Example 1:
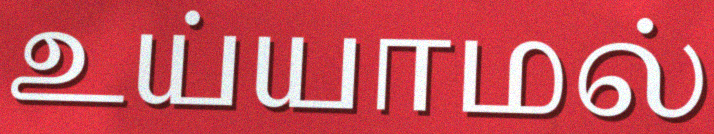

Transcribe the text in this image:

உய்யாமல்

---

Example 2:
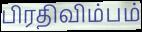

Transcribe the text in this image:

பிரதிவிம்பம்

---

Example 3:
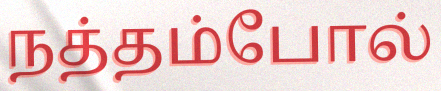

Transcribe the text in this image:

நத்தம்போல்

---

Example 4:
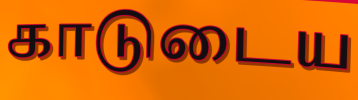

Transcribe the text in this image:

காடுடைய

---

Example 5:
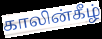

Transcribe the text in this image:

காலின்கீழ்